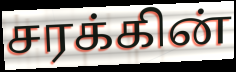
சரக்கின்